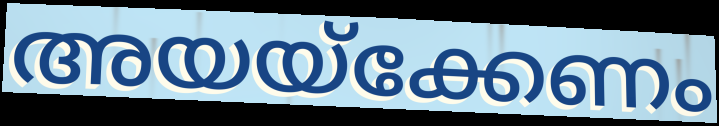
അയയ്ക്കേണം